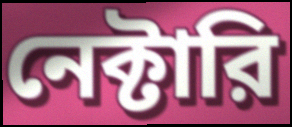
নেক্টারি